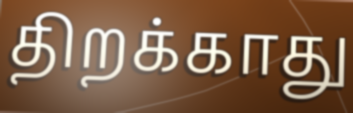
திறக்காது